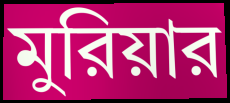
মুরিয়ার